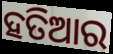
ହତିଆର